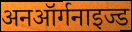
अनऑर्गनाइज्ड